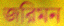
জরিমন